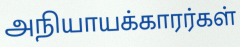
அநியாயக்காரர்கள்